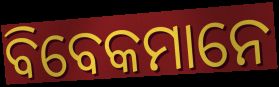
ବିବେକମାନେ